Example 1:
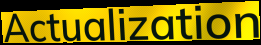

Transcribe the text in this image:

Actualization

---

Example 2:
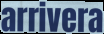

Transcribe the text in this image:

arrivera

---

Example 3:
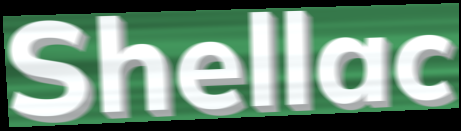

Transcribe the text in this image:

Shellac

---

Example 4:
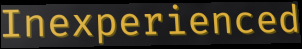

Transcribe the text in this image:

Inexperienced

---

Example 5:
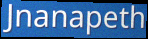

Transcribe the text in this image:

Jnanapeth